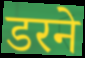
डरने